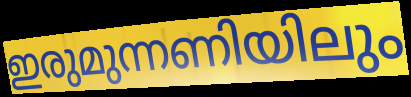
ഇരുമുന്നണിയിലും